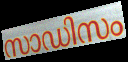
സാഡിസം